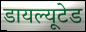
डायल्यूटेड